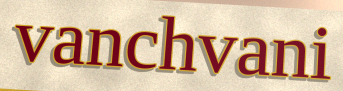
vanchvani